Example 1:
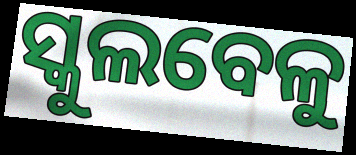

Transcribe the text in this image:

ସ୍କୁଲବେଳୁ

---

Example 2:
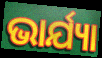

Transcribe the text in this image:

ଭାର୍ଯ୍ୟା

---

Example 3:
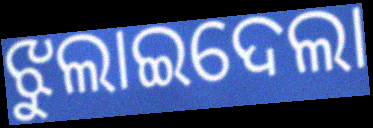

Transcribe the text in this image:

ଝୁଲାଇଦେଲା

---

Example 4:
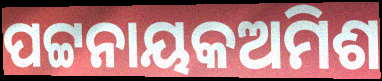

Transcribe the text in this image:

ପଟ୍ଟନାୟକଅମିଶ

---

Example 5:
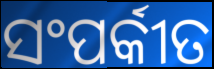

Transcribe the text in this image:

ସଂପର୍କୀତ